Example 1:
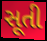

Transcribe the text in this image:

સૂતી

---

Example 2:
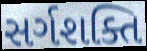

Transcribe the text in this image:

સર્ગશક્તિ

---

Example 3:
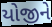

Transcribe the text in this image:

યોજીને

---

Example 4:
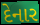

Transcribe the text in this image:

દેનાર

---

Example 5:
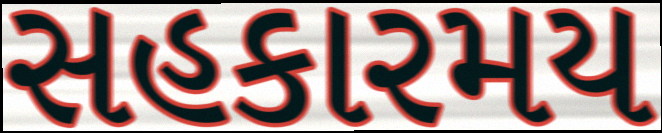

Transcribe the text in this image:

સહકારમય